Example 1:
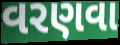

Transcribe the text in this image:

વરણવા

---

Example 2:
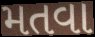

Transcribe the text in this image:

મતવા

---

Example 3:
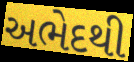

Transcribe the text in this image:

અભેદથી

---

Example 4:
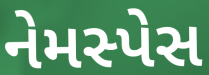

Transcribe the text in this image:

નેમસ્પેસ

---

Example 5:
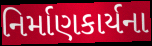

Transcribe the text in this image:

નિર્માણકાર્યના